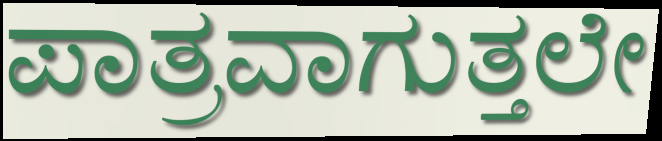
ಪಾತ್ರವಾಗುತ್ತಲೇ